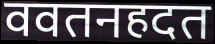
ववतनहदत